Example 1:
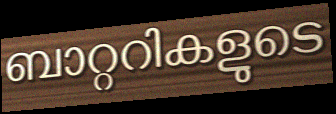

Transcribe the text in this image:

ബാറ്ററികളുടെ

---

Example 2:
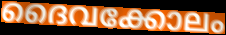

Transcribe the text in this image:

ദൈവക്കോലം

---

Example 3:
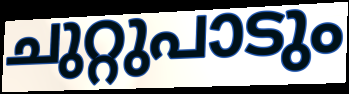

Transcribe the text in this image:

ചുറ്റുപാടും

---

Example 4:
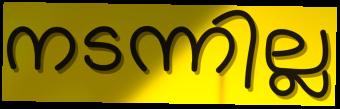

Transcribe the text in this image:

നടന്നില്ല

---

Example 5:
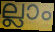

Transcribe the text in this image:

ല്ലാം